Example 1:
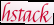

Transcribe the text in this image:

hstack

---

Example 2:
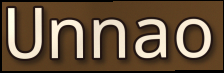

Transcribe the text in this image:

Unnao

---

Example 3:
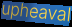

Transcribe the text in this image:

upheaval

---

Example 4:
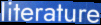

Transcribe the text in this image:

Iiterature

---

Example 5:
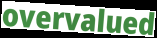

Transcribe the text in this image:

overvalued